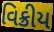
વિક્રીય